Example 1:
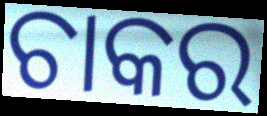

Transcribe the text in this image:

ଚାକର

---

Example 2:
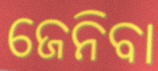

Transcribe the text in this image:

ଜେନିବା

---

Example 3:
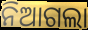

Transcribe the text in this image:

ନିଆଗଲା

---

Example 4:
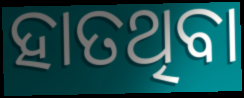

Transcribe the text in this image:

ହାତଥିବା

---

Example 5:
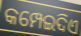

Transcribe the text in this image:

କମ୍ପେଇଦିଏ